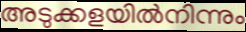
അടുക്കളയിൽനിന്നും